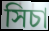
সিচা